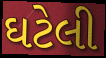
ઘટેલી